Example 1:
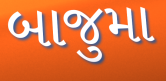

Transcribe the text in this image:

બાજુમા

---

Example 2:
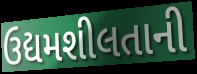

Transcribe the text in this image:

ઉદ્યમશીલતાની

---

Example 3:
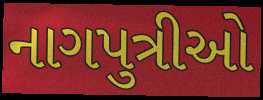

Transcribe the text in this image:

નાગપુત્રીઓ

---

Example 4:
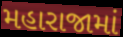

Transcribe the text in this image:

મહારાજામાં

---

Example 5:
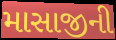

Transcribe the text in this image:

માસાજીની